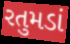
રતુમડાં